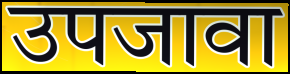
उपजावा